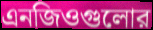
এনজিওগুলোর